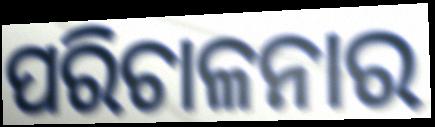
ପରିଚାଳନାର